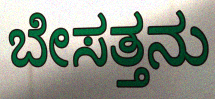
ಬೇಸತ್ತನು